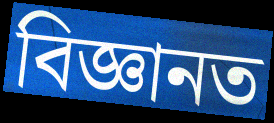
বিজ্ঞানত